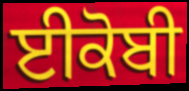
ਈਕੋਬੀ